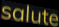
salute